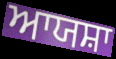
ਆਯਸ਼ਾ